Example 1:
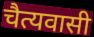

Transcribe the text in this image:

चैत्यवासी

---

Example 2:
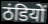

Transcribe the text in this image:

ठंडियों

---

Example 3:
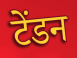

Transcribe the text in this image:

टेंडन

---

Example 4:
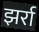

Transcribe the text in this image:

झर्रा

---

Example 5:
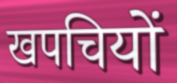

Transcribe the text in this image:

खपचियों